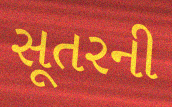
સૂતરની